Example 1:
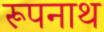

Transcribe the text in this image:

रूपनाथ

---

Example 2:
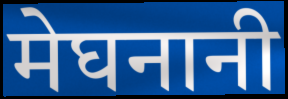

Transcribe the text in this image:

मेघनानी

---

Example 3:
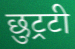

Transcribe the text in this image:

छुट्रटी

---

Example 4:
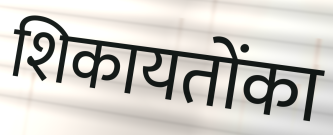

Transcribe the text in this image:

शिकायतोंका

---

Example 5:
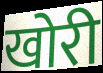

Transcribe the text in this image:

खोरी